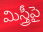
మిస్త్రీపై